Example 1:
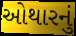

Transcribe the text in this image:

ઓથારનું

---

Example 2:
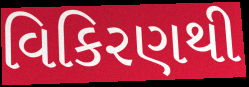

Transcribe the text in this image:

વિકિરણથી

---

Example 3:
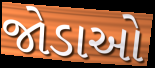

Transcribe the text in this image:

જોડાઓ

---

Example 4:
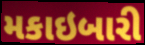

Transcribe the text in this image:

મકાઇબારી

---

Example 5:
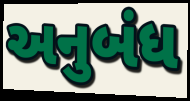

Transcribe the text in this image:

અનુબંધ